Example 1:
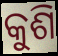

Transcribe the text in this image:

କୁଶି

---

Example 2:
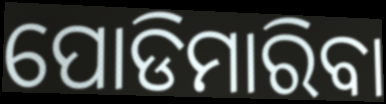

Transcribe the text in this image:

ପୋଡିମାରିବା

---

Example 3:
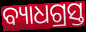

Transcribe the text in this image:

ବ୍ୟାଧଗ୍ରସ୍ତ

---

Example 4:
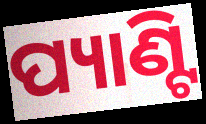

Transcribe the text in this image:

ପ୍ୟାଣ୍ଟି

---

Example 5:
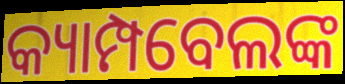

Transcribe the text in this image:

କ୍ୟାମ୍ପବେଲଙ୍କ